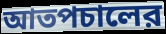
আতপচালের